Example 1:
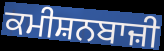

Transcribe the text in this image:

ਕਮੀਸ਼ਨਬਾਜ਼ੀ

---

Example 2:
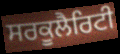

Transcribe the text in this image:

ਸਰਕੂਲੈਰਿਟੀ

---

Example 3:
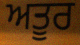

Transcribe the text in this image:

ਅਤੂਰ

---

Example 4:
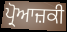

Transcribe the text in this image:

ਪ੍ਰੋਆਜ਼ਕੀ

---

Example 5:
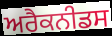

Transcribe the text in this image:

ਅਰੈਕਨੀਡਸ